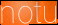
notu